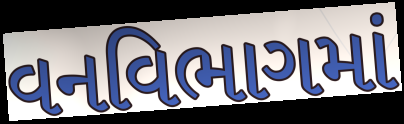
વનવિભાગમાં